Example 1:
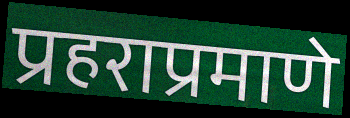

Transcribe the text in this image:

प्रहराप्रमाणे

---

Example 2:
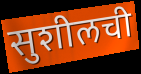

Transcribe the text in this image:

सुशीलची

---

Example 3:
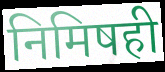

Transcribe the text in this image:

निमिषही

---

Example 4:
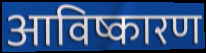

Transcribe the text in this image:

आविष्कारण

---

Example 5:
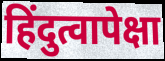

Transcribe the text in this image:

हिंदुत्वापेक्षा